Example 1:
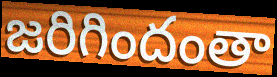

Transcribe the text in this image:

జరిగిందంతా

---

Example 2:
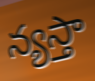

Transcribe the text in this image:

న్యస్తా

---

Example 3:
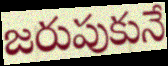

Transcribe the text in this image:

జరుపుకునే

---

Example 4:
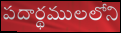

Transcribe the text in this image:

పదార్థములలోని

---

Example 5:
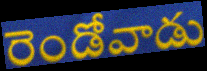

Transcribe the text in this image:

రెండోవాడు